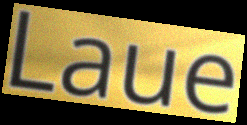
Laue